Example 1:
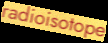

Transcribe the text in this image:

radioisotope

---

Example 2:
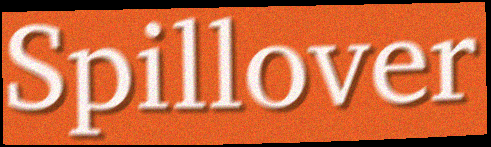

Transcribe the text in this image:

Spillover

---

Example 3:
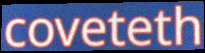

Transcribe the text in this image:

coveteth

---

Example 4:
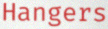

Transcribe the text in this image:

Hangers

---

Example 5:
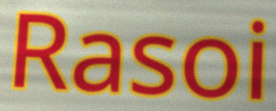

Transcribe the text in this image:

Rasoi